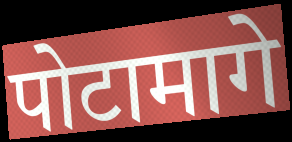
पोटामागे